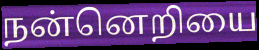
நன்னெறியை